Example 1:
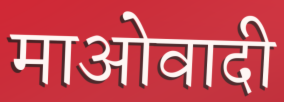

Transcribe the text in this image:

माओवादी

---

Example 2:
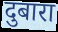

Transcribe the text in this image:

दुबारा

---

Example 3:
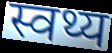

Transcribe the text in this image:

स्वथ्य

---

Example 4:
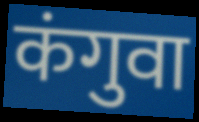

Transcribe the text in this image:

कंगुवा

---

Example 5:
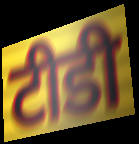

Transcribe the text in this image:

टीडी